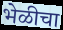
भेळीचा